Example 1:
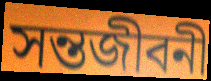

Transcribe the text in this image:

সন্তজীবনী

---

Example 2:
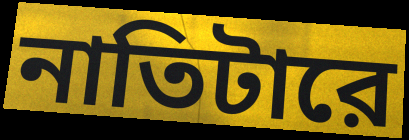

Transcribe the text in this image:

নাতিটারে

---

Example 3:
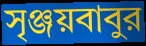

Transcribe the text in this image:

সৃঞ্জয়বাবুর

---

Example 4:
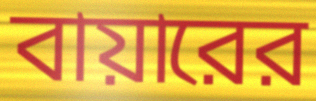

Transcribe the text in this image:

বায়ারের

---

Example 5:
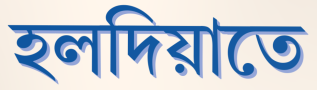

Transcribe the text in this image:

হলদিয়াতে